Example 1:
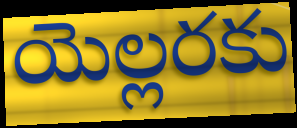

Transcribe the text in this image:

యెల్లరకు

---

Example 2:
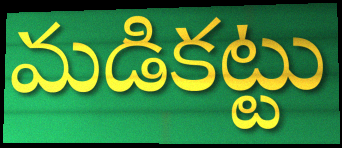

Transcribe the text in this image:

మడికట్టు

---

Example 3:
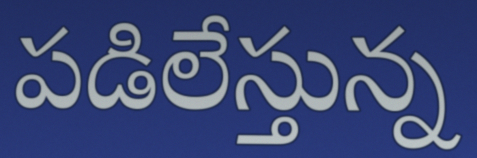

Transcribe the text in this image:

పడిలేస్తున్న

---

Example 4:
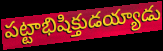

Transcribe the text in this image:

పట్టాభిషిక్తుడయ్యాడు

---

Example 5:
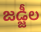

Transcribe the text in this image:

జడ్జీల